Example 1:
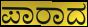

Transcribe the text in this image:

ಪಾರಾದ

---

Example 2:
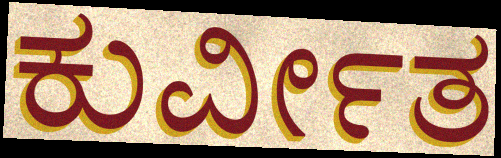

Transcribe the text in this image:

ಕುರ್ವೀತ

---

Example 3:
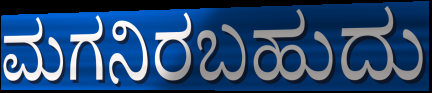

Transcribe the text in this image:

ಮಗನಿರಬಹುದು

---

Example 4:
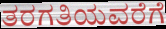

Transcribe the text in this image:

ತರಗತಿಯವರೆಗೆ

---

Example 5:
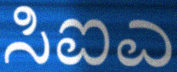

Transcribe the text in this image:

ಸಿಐಎ